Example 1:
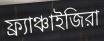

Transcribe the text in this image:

ফ্র্যাঞ্চাইজিরা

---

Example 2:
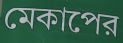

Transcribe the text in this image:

মেকাপের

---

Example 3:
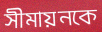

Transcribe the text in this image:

সীমায়নকে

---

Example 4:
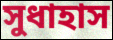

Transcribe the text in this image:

সুধাহাস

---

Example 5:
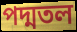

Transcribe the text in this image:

পদ্মতল